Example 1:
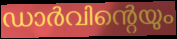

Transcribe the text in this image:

ഡാർവിന്റെയും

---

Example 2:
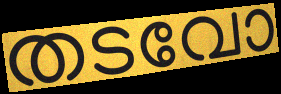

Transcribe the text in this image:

തടവോ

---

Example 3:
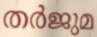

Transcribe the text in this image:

തർജുമ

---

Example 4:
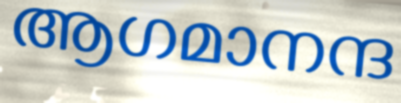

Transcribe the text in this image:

ആഗമാനന്ദ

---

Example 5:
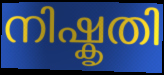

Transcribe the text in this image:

നിഷ്കൃതി